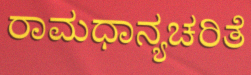
ರಾಮಧಾನ್ಯಚರಿತೆ